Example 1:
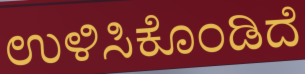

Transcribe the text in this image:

ಉಳಿಸಿಕೊಂಡಿದೆ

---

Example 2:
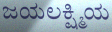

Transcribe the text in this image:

ಜಯಲಕ್ಷ್ಮಿಯ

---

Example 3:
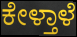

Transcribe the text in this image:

ಕೇಳ್ತಾಳೆ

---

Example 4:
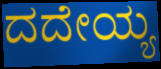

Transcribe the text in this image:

ದದೇಯ್ಯ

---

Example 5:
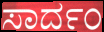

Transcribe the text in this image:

ಸಾರ್ದಂ